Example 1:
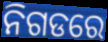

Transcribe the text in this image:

ନିଗଡରେ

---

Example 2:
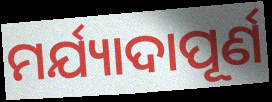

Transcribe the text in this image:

ମର୍ଯ୍ୟାଦାପୂର୍ଣ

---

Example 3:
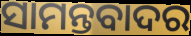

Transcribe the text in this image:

ସାମନ୍ତବାଦର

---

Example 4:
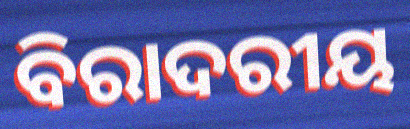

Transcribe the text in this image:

ବିରାଦରୀୟ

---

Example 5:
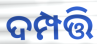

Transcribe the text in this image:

ଦମ୍ପତ୍ତି